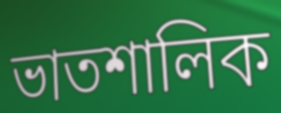
ভাতশালিক